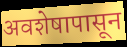
अवशेषापासून